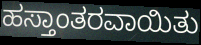
ಹಸ್ತಾಂತರವಾಯಿತು